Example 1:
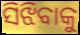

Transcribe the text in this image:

ସିଝିବାକୁ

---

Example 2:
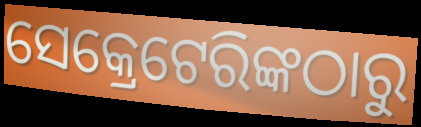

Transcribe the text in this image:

ସେକ୍ରେଟେରିଙ୍କଠାରୁ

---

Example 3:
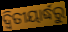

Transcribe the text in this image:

ଦ୍ଵିତୀୟାର୍ଦ୍ଧରୁ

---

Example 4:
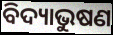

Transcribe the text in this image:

ବିଦ୍ୟାଭୁଷଣ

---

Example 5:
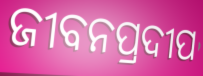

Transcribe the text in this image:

ଜୀବନପ୍ରଦୀପ